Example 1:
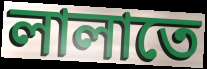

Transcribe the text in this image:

লালাতে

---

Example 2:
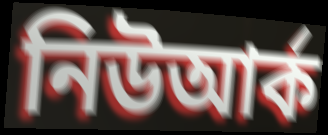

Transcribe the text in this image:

নিউআর্ক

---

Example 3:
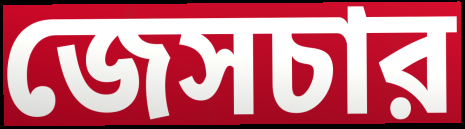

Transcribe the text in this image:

জেসচার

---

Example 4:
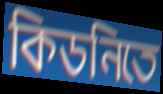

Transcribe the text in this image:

কিডনিতে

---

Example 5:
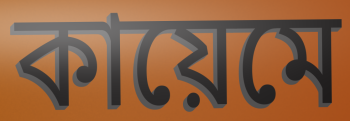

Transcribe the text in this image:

কায়েমে